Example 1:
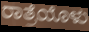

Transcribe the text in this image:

ರಾತ್ರೆಯೊಳು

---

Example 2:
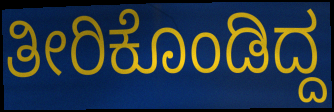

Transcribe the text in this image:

ತೀರಿಕೊಂಡಿದ್ದ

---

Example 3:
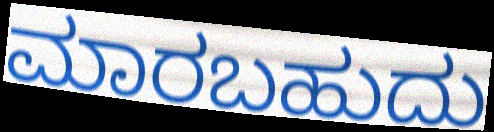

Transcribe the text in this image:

ಮಾರಬಹುದು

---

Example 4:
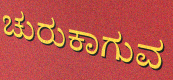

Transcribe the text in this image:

ಚುರುಕಾಗುವ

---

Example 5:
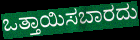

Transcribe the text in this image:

ಒತ್ತಾಯಿಸಬಾರದು